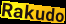
Rakudo